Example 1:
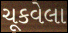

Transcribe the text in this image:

ચૂકવેલા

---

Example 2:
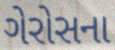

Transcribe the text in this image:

ગેરોસના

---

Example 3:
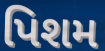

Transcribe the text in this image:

પિશમ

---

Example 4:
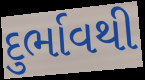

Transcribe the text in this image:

દુર્ભાવથી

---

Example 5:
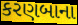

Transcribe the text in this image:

કરણબાના